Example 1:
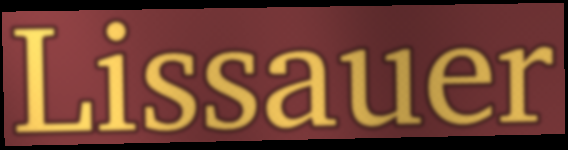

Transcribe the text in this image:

Lissauer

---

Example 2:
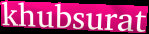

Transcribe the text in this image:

khubsurat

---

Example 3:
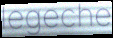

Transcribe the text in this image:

legeche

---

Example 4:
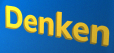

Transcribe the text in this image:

Denken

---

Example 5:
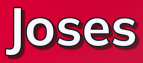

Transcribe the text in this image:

Joses